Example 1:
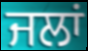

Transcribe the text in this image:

ਜਲਾਂ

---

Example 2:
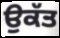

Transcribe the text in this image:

ਉਕੱਤ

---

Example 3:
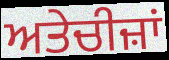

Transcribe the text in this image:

ਅਤੇਚੀਜ਼ਾਂ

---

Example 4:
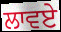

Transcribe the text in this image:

ਲਾਵਏ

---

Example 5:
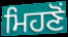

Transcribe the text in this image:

ਮਿਹਣੋਂ